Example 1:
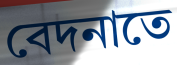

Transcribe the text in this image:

বেদনাতে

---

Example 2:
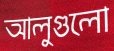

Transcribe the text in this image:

আলুগুলো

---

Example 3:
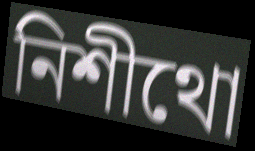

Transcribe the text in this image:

নিশীথো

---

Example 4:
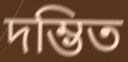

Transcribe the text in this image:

দম্ভিত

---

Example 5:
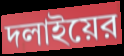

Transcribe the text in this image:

দলাইয়ের